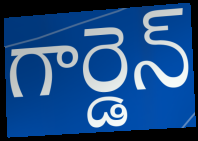
గార్డెన్